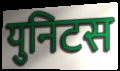
युनिटस